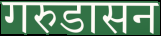
गरुडासन